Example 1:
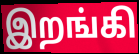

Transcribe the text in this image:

இறங்கி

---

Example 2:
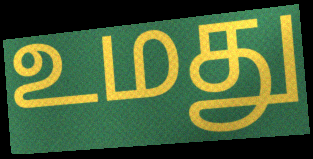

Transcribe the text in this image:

உமது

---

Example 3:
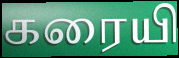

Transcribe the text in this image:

கரையி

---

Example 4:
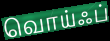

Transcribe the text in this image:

வொய்ஃப்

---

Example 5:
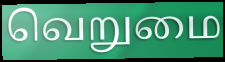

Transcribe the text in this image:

வெறுமை